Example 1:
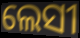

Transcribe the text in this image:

ଲେସୀ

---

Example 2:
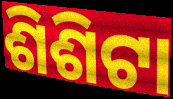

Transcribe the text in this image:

ଶିଶିଟା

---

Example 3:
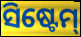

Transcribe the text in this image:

ସିଷ୍ଟେମ୍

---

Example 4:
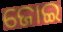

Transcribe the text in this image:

ଜୋଇ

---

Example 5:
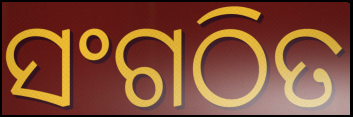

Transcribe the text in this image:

ସଂଗଠିତ